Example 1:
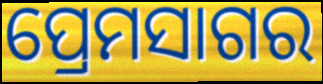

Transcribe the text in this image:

ପ୍ରେମସାଗର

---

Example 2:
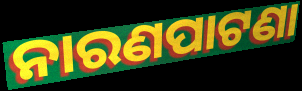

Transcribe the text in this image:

ନାରଣପାଟଣା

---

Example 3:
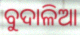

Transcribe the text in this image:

ବୁଦାଳିଆ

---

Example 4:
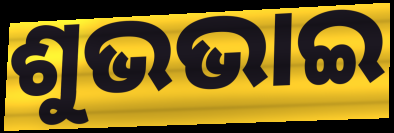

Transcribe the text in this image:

ଶୁଭଭାଇ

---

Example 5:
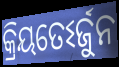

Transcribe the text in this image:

କ୍ରିୟତେଽର୍ଜୁନ